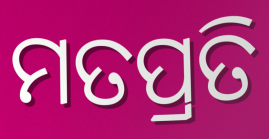
ମତପ୍ରତି